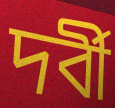
দর্বী